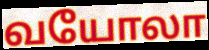
வயோலா